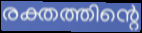
രക്തത്തിന്റെ